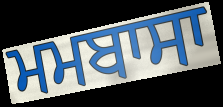
ਮਮਬਾਸਾ